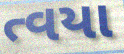
ત્વયા